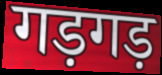
गड़गड़